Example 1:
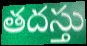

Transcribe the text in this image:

తదస్తు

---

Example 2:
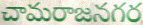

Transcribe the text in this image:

చామరాజనగర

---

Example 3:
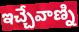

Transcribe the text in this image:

ఇచ్చేవాణ్ని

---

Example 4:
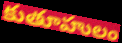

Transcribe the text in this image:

కుతూహులం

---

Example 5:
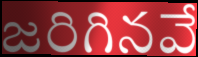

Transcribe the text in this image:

జరిగినవే